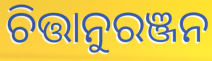
ଚିତ୍ତାନୁରଞ୍ଜନ